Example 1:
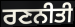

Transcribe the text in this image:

ਰਣਨੀਤੀ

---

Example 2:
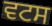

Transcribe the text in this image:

ਵਟਸ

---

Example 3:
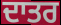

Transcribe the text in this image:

ਦਾਤਰ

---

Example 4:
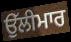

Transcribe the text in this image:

ਉੱਲੀਮਾਰ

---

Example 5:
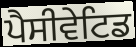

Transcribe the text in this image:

ਪੈਸੀਵੇਟਿਡ